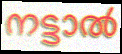
നട്ടാൽ